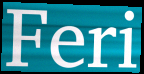
Feri